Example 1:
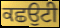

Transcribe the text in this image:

ਕਛਉਟੀ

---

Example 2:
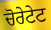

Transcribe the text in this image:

ਚੋਰੇਟੇਟ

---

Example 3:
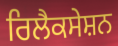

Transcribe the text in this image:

ਰਿਲੈਕਸੇਸ਼ਨ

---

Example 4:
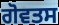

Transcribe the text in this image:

ਗੋਵਤਸ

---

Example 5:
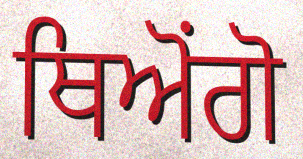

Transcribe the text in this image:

ਥਿਅੋਂਗੋ